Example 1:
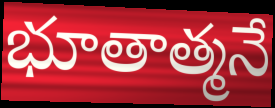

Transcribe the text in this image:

భూతాత్మనే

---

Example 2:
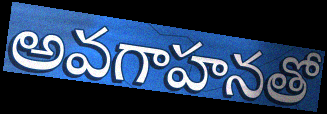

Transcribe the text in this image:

అవగాహనతో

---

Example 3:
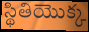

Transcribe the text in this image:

స్థితియొక్క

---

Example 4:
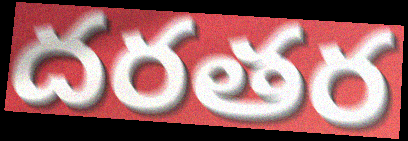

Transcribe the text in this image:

దరతర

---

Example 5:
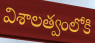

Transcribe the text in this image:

విశాలత్వంలోకి